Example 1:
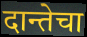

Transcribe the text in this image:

दान्तेचा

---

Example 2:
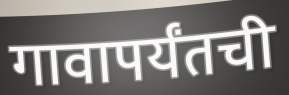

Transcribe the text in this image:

गावापर्यंतची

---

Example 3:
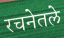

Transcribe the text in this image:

रचनेतले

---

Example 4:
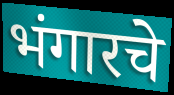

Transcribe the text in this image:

भंगारचे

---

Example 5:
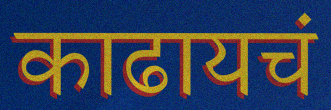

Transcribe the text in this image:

काढायचं